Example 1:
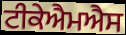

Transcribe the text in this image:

ਟੀਕੇਐਮਐਸ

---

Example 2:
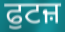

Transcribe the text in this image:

ਫੁਟਜ਼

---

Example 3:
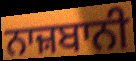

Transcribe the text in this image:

ਨਾਜ਼ਬਾਨੀ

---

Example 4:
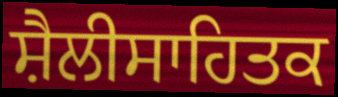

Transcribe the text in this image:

ਸ਼ੈਲੀਸਾਹਿਤਕ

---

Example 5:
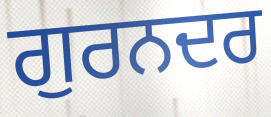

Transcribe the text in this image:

ਗੁਰਨਦਰ